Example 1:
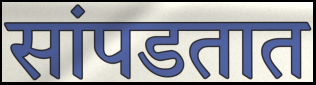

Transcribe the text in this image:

सांपडतात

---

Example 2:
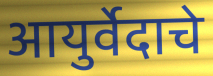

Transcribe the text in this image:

आयुर्वेदाचे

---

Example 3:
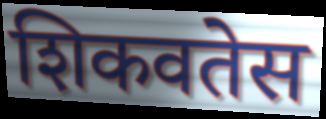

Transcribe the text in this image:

शिकवतेस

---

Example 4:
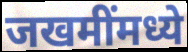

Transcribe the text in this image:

जखमींमध्ये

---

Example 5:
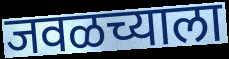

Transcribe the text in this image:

जवळच्याला